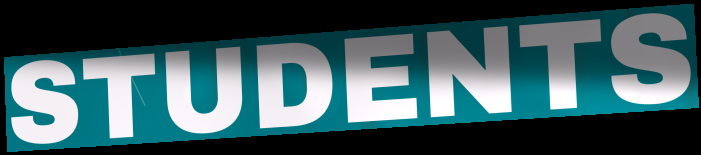
STUDENTS